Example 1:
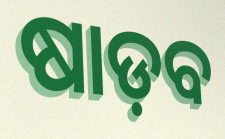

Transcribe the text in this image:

ଷାଡ଼ବ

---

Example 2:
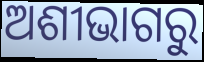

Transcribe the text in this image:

ଅଶୀଭାଗରୁ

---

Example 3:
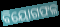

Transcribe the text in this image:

ବିୟୋଗଫଳ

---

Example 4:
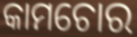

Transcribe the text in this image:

କାମଚୋର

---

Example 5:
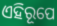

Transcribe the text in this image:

ଏହିରୂପେ